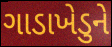
ગાડાખેડુને